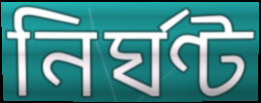
নির্ঘণ্ট